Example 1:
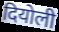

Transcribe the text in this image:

दियोली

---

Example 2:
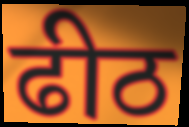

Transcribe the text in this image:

ढीठ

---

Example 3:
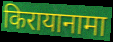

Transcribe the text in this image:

किरायानामा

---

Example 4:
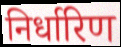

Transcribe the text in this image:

निर्धारिण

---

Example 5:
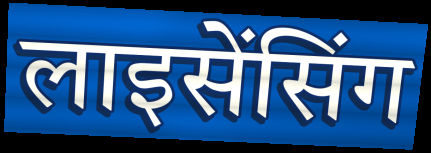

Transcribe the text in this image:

लाइसेंसिंग